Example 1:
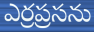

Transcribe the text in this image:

ఎర్రప్రసను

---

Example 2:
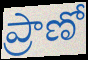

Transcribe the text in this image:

ప్రాణో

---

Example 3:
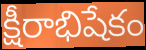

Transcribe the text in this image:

క్షీరాభిషేకం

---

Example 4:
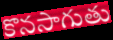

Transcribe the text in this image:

కొనసాగుతు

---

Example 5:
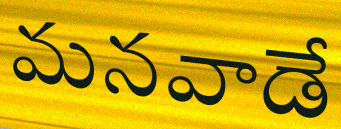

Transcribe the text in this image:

మనవాడే